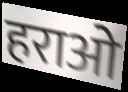
हराओ